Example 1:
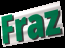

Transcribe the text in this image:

Fraz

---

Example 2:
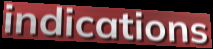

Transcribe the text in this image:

indications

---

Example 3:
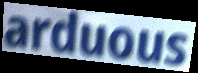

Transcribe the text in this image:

arduous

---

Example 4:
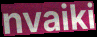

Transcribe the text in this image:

nvaiki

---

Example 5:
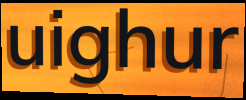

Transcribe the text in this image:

uighur